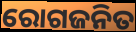
ରୋଗଜନିତ